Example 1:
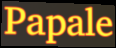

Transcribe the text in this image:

Papale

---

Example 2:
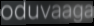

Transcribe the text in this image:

oduvaaga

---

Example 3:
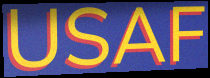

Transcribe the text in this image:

USAF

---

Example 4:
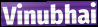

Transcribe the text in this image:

Vinubhai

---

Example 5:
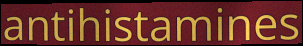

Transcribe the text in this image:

antihistamines